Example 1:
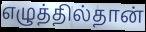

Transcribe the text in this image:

எழுத்தில்தான்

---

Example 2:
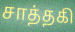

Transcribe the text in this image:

சாத்தகி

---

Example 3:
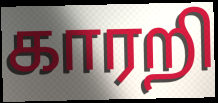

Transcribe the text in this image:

காரறி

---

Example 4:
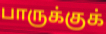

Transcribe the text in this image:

பாருக்குக்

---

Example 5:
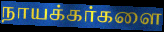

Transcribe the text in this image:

நாயக்கர்களை